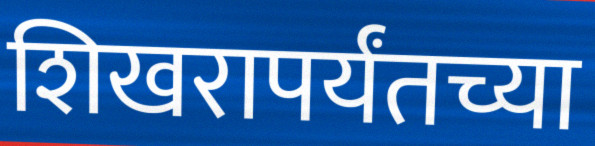
शिखरापर्यंतच्या